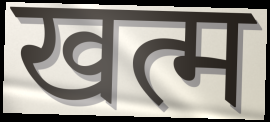
खत्म